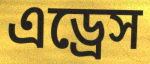
এড্রেস